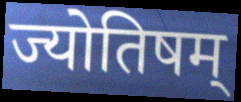
ज्योतिषम्